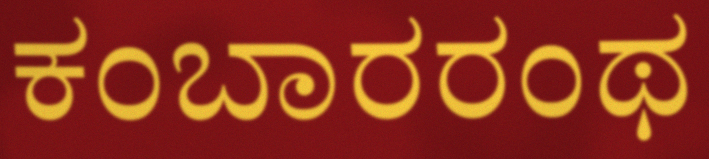
ಕಂಬಾರರಂಥ